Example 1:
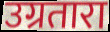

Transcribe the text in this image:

उग्रतारा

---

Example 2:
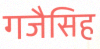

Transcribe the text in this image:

गजैसिह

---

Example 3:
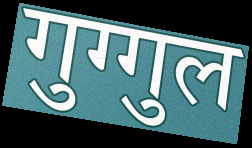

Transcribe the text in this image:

गुग्‍गुल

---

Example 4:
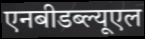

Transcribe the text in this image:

एनबीडब्ल्यूएल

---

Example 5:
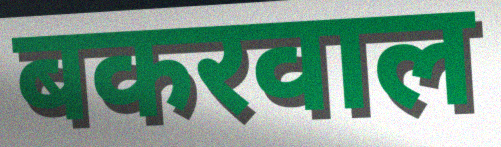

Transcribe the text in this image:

बकरवाल